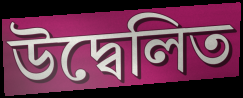
উদ্বেলিত